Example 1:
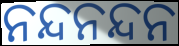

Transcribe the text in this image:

ନନ୍ଦନନ୍ଦନ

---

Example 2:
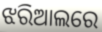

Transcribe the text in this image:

ଝରିଆଲରେ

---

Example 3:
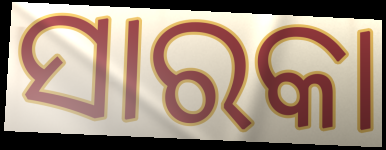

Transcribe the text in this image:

ସାରକା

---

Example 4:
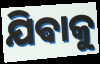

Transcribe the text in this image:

ଯିଵାକୁ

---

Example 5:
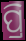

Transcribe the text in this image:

ପ୍ରି